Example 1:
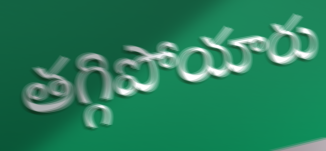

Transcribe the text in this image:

తగ్గిపోయారు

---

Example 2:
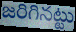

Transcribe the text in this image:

జరిగినట్టు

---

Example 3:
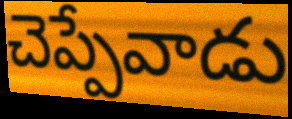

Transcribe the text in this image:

చెప్పేవాడు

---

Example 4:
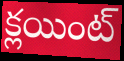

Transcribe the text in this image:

క్లయింట్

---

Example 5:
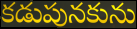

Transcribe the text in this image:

కడుపునకును